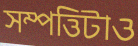
সম্পত্তিটাও